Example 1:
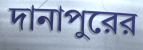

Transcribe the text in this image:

দানাপুরের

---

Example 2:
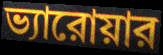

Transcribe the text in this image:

ভ্যারোয়ার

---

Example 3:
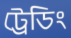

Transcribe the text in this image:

ট্রেডিং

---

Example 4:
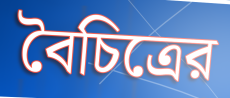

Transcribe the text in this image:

বৈচিত্রের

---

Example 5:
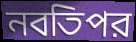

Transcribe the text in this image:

নবতিপর